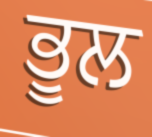
ਭੂਲ